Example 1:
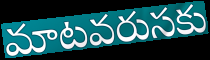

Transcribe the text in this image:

మాటవరుసకు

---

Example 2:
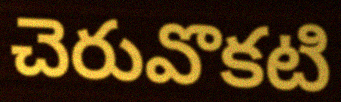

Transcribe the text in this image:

చెరువొకటి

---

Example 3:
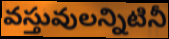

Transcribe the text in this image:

వస్తువులన్నిటినీ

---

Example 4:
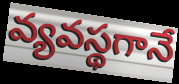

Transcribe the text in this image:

వ్యవస్థగానే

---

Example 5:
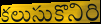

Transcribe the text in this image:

కలుసుకొనిరి